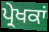
ਪ੍ਰੇਖਕਾਂ